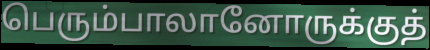
பெரும்பாலானோருக்குத்